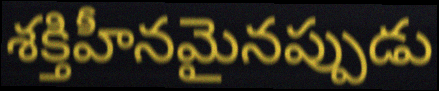
శక్తిహీనమైనప్పుడు